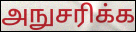
அநுசரிக்க